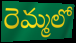
రెమ్మలో